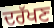
ਦਰੱਖਣ